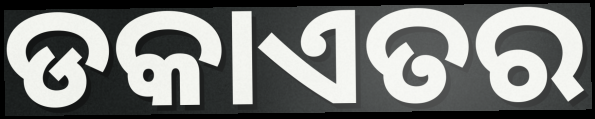
ଡକାଏତର